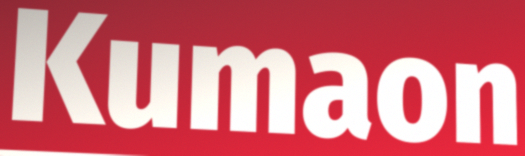
Kumaon